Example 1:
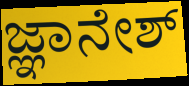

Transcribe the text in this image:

ಜ್ಞಾನೇಶ್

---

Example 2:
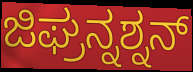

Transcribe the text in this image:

ಜಿಘ್ರನ್ನಶ್ನನ್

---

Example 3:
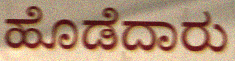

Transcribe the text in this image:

ಹೊಡೆದಾರು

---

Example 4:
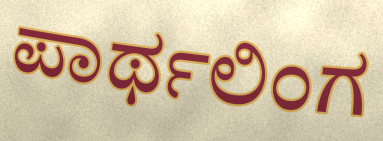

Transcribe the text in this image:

ಪಾರ್ಥಲಿಂಗ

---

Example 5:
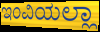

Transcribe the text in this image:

ಇಂವಿಯಲ್ಲಾ